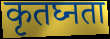
कृतघ्नता